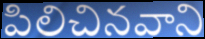
పిలిచినవాని